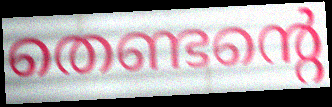
തെണ്ടന്റെ